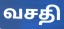
வசதி